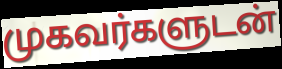
முகவர்களுடன்